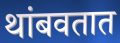
थांबवतात